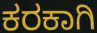
ಕರಕಾಗಿ